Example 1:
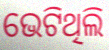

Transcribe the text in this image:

ଭେଟିଥିଲି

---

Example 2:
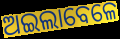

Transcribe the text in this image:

ଅଇଲାବେଳେ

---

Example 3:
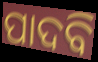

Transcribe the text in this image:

ପାଦବି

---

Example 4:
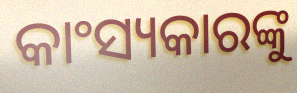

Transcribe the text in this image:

କାଂସ୍ୟକାରଙ୍କୁ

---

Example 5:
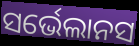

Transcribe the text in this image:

ସର୍ଭେଲାନସ